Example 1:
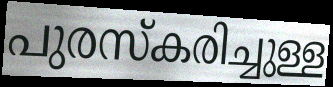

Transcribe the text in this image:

പുരസ്കരിച്ചുള്ള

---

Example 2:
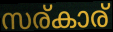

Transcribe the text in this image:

സര്കാര്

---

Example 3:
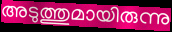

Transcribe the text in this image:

അടുത്തുമായിരുന്നു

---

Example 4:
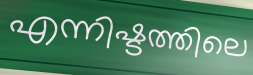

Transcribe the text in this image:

എന്നിഷ്ടത്തിലെ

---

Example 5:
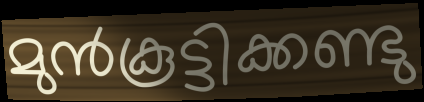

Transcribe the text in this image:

മുൻകൂട്ടിക്കണ്ടു